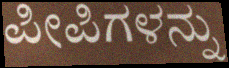
ಪೀಪಿಗಳನ್ನು